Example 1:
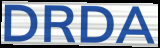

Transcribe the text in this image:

DRDA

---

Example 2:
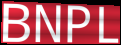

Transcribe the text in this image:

BNPL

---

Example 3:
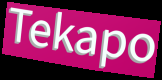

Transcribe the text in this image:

Tekapo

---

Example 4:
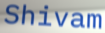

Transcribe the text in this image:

Shivam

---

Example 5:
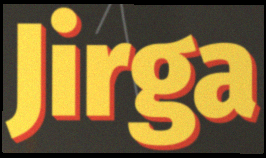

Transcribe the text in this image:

Jirga